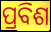
ପ୍ରବିଶ